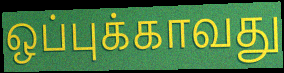
ஒப்புக்காவது